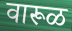
वारूळ